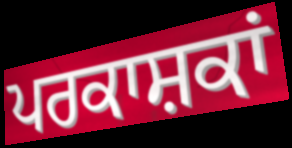
ਪਰਕਾਸ਼ਕਾਂ